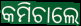
କମିଚାଲେ